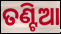
ତଣ୍ଟିଆ